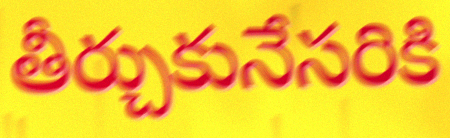
తీర్చుకునేసరికి